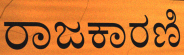
ರಾಜಕಾರಣಿ